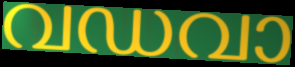
വഡവാ